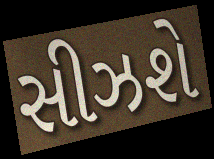
સીઝશે